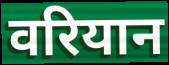
वरियान